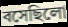
বসেছিলো